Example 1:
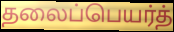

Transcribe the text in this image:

தலைப்பெயர்த்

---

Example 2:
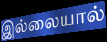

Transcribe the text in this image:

இல்லையால்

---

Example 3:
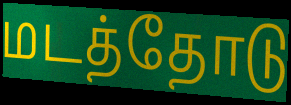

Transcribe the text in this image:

மடத்தோடு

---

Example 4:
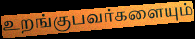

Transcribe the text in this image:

உறங்குபவர்களையும்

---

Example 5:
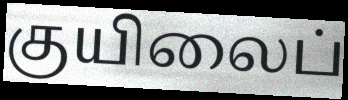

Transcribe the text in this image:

குயிலைப்